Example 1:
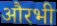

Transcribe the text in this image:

औरभी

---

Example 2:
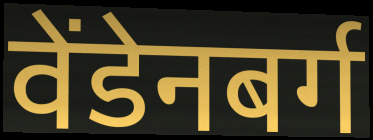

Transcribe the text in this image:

वेंडेनबर्ग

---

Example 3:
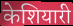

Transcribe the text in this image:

केशियारी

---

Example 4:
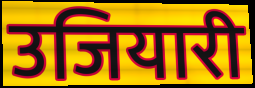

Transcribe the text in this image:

उजियारी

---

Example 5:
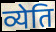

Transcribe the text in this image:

व्येति